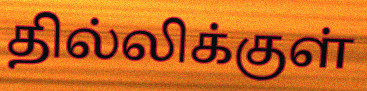
தில்லிக்குள்